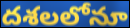
దశలలోనూ